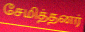
சேமித்தனர்